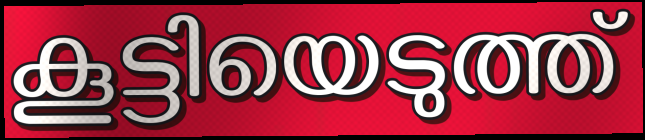
കൂട്ടിയെടുത്ത്